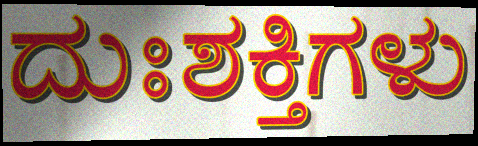
ದುಃಶಕ್ತಿಗಳು